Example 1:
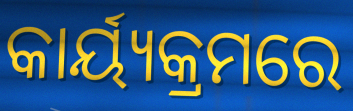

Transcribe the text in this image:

କାର୍ୟ୍ୟକ୍ରମରେ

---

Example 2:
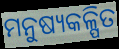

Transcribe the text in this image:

ମନୁଷ୍ୟକଳ୍ପିତ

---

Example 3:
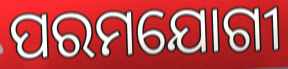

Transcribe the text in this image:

ପରମଯୋଗୀ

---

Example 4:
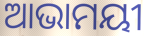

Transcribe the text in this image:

ଆଭାମୟୀ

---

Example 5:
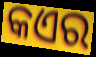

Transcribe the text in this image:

କଏର